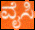
ವೈಸಿ